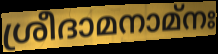
ശ്രീദാമനാമ്നഃ